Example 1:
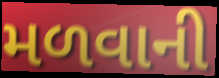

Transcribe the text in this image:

મળવાની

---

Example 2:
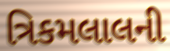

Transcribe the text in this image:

ત્રિકમલાલની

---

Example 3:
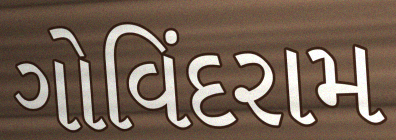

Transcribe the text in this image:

ગોવિંદરામ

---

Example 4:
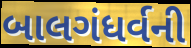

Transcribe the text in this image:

બાલગંધર્વની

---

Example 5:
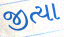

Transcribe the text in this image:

જીત્યા